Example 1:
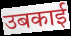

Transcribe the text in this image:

उबकाई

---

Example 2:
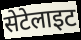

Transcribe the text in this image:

सेटेलाइट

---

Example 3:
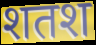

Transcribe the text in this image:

शतश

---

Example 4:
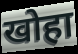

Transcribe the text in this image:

खोहा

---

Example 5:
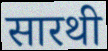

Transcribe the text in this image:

सारथी